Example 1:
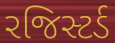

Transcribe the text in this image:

રજિસ્ટર્ડ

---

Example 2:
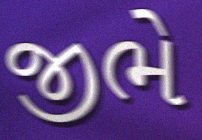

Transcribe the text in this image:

જીભે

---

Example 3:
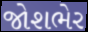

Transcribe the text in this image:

જોશભેર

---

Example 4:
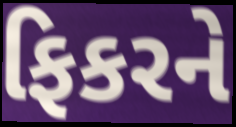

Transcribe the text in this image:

ફિકરને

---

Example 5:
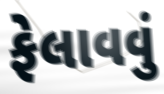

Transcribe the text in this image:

ફેલાવવું